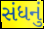
સંધનું